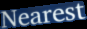
Nearest